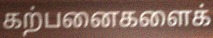
கற்பனைகளைக்